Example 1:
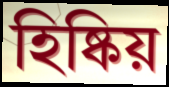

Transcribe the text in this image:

হিষ্কিয়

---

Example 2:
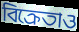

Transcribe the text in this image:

বিক্রেতাও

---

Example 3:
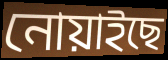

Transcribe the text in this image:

নোয়াইছে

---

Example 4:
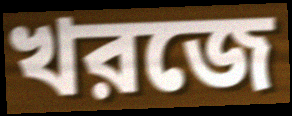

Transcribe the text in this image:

খরজে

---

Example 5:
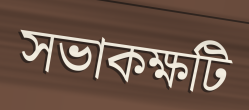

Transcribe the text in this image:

সভাকক্ষটি